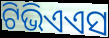
ଟିଭିଏଏସ